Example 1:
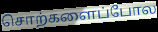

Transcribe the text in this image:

சொற்களைப்போல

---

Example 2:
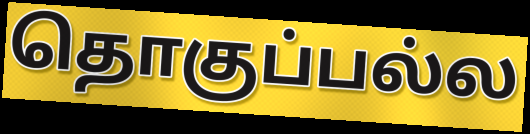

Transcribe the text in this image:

தொகுப்பல்ல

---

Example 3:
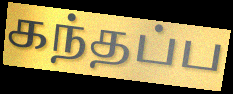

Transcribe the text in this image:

கந்தப்ப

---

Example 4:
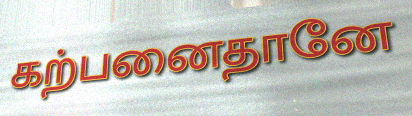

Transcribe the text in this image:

கற்பனைதானே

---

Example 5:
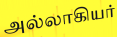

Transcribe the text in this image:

அல்லாகியர்